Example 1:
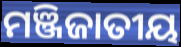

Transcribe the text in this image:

ମଞ୍ଜିଜାତୀୟ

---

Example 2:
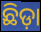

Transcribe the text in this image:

ଛିଡ଼ା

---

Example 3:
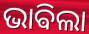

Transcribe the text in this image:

ଭାଵିଲା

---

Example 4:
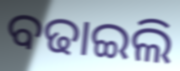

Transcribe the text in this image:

ବଢାଇଲି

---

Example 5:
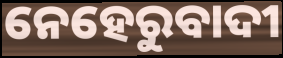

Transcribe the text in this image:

ନେହେରୁବାଦୀ